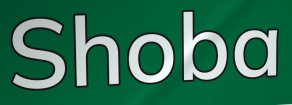
Shoba